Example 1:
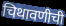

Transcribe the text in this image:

चिथावणीची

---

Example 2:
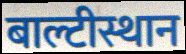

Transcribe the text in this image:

बाल्टीस्थान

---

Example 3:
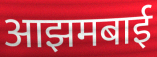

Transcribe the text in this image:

आझमबाई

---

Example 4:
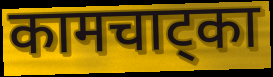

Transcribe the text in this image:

कामचाट्का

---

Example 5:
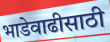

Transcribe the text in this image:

भाडेवाढीसाठी